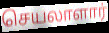
செயலாளார்